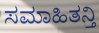
ಸಮಾಹಿತನ್ತಿ